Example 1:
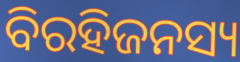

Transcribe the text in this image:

ବିରହିଜନସ୍ୟ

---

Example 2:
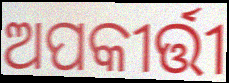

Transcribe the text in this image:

ଅପକୀର୍ତ୍ତୀ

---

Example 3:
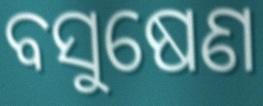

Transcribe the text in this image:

ବସୁଷେଣ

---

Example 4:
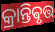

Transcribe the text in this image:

କ୍ରାନ୍ତିଵୃତ୍ତ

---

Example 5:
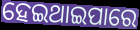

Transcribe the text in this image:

ହେଇଥାଇପାରେ